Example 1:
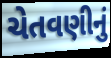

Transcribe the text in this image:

ચેતવણીનું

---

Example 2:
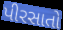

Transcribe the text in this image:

પીરસાતો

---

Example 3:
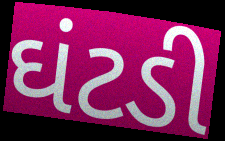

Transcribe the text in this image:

ઘંટડી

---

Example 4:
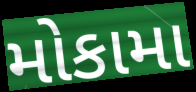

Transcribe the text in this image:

મોકામા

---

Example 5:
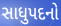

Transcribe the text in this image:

સાધુપદનો